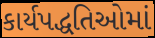
કાર્યપદ્ધતિઓમાં